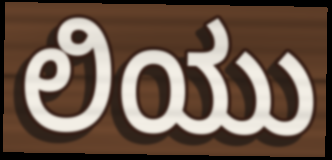
ಲಿಯು